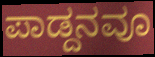
ಪಾಡ್ದನವೂ